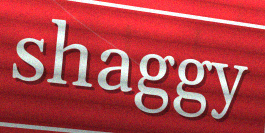
shaggy